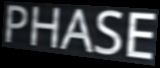
PHASE